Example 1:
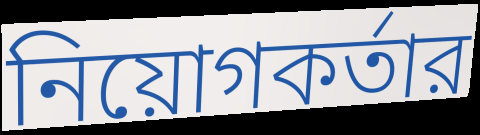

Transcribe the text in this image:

নিয়োগকর্তার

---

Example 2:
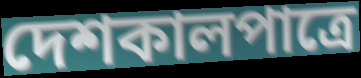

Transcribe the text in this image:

দেশকালপাত্রে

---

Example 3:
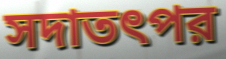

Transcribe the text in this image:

সদাতৎপর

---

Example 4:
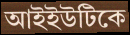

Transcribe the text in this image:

আইইউটিকে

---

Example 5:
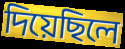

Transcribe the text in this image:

দিয়েছিলে